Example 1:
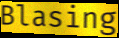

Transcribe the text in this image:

Blasing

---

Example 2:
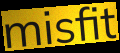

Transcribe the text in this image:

misfit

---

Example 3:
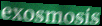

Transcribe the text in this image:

exosmosis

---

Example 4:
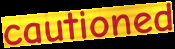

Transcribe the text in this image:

cautioned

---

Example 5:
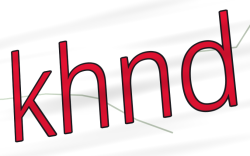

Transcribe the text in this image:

khnd